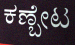
ಕಣ್ಬೇಟ